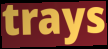
trays